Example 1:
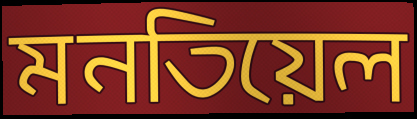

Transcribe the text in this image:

মনতিয়েল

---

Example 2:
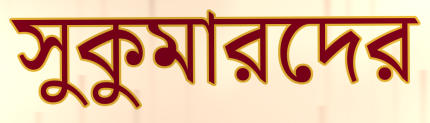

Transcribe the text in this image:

সুকুমারদের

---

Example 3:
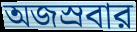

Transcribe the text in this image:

অজস্রবার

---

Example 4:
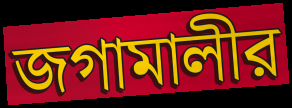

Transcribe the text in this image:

জগামালীর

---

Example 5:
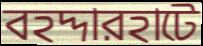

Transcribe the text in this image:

বহদ্দারহাটে